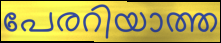
പേരറിയാത്ത